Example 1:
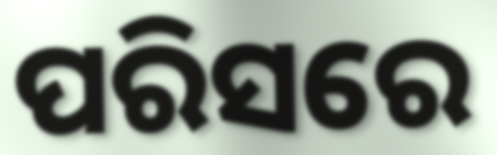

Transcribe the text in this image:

ପରିସରେ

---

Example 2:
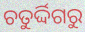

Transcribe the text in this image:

ଚତୁର୍ଦ୍ଦିଗରୁ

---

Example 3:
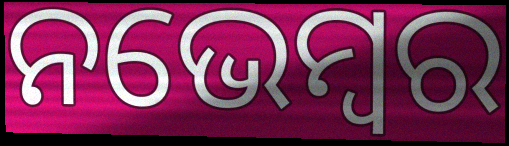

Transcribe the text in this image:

ନଭେମ୍ବର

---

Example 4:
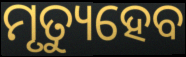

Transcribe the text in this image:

ମୃତ୍ୟୁହେବ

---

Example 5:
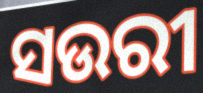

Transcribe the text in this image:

ସଉରୀ